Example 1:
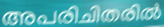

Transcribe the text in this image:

അപരിചിതരിൽ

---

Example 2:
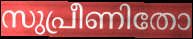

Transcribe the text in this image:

സുപ്രീണിതോ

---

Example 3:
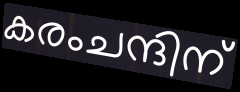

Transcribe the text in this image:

കരംചന്ദിന്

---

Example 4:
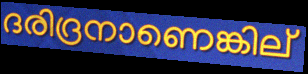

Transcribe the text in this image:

ദരിദ്രനാണെങ്കില്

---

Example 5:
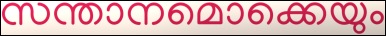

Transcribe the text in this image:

സന്താനമൊക്കെയും